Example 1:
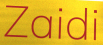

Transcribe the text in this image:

Zaidi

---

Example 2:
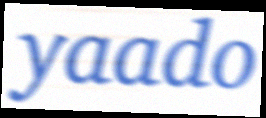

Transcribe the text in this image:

yaado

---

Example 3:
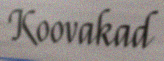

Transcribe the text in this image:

Koovakad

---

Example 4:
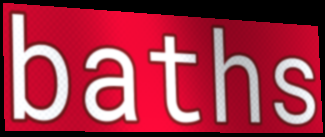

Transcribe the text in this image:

baths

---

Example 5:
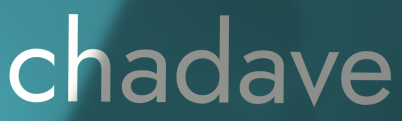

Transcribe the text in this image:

chadave